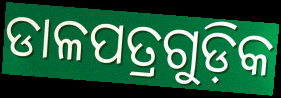
ଡାଳପତ୍ରଗୁଡ଼ିକ